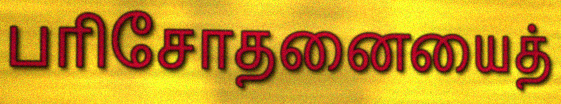
பரிசோதனையைத்